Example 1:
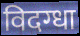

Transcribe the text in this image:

विदग्धा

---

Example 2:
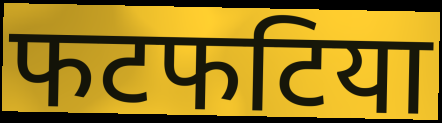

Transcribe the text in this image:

फटफटिया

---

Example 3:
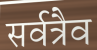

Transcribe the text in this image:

सर्वत्रैव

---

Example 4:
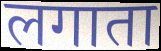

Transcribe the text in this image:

लगाता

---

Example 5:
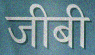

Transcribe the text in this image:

जीबी